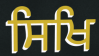
ਸਿਖਿ